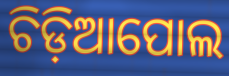
ଚିଡ଼ିଆପୋଲ